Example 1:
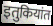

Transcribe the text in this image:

इतुकियांत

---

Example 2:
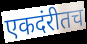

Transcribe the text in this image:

एकदंरीतच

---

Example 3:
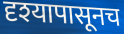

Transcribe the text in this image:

दृश्यापासूनच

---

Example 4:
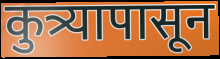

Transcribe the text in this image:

कुत्र्यापासून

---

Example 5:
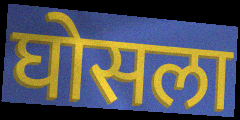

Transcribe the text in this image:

घोसला